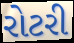
રોટરી